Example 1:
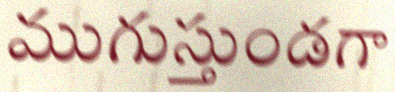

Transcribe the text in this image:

ముగుస్తుండగా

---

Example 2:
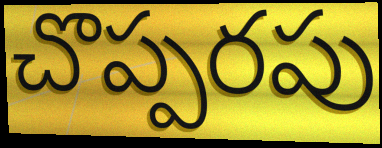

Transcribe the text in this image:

చొప్పరపు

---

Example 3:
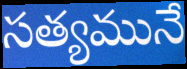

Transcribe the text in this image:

సత్యమునే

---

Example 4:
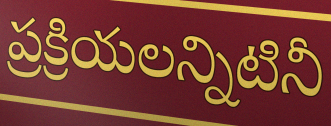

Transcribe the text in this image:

ప్రక్రియలన్నిటినీ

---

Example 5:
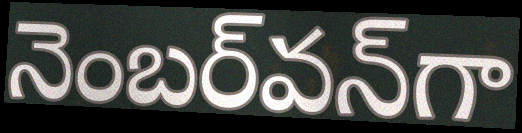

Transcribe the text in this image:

నెంబర్‌వన్‌గా